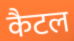
कैटल